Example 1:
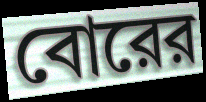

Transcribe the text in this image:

বোরের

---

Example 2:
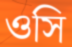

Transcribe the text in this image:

ওসি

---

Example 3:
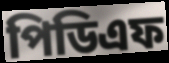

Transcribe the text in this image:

পিডিএফ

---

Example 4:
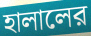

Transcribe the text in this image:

হালালের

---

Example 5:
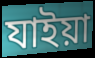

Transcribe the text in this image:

যাইয়া